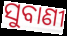
ସୁବାଣୀ